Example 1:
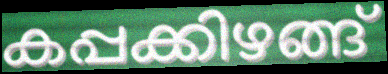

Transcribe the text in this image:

കപ്പക്കിഴങ്ങ്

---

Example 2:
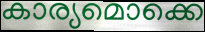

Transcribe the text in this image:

കാര്യമൊക്കെ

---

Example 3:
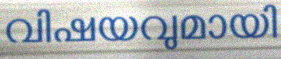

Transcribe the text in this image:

വിഷയവുമായി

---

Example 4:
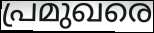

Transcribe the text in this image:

പ്രമുഖരെ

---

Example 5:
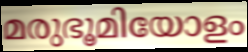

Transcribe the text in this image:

മരുഭൂമിയോളം